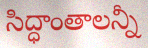
సిద్ధాంతాలన్నీ